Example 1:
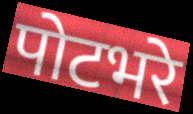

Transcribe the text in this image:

पोटभरे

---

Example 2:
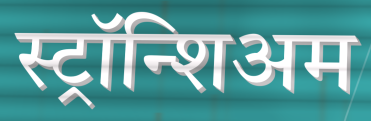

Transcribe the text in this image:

स्ट्रॉन्शिअम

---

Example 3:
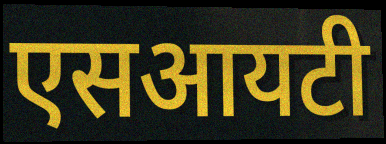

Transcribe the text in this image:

एसआयटी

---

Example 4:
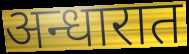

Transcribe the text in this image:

अन्धारात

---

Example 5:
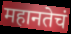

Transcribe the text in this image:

महानतेचं